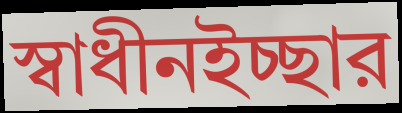
স্বাধীনইচ্ছার